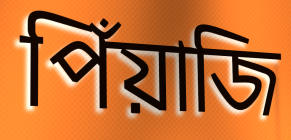
পিঁয়াজি